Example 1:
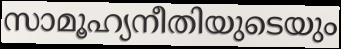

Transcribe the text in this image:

സാമൂഹ്യനീതിയുടെയും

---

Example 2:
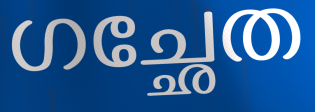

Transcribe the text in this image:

ഗച്ഛേത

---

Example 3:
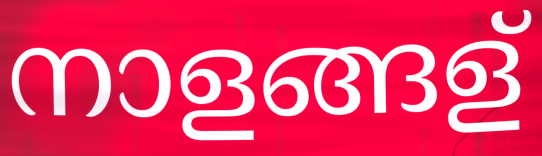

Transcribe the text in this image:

നാളങ്ങള്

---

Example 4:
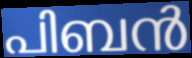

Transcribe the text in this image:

പിബൻ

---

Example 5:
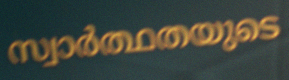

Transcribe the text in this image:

സ്വാർത്ഥതയുടെ